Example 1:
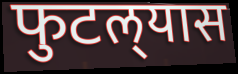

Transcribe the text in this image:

फुटल्यास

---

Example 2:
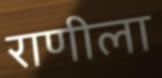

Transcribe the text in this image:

राणीला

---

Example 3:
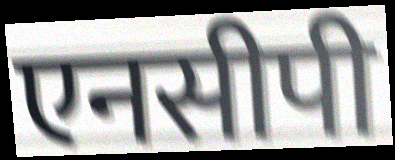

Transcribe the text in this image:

एनसीपी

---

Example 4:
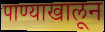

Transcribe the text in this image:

पाण्याखालून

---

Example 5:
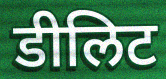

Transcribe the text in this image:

डीलिट